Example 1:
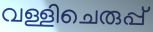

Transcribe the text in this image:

വള്ളിചെരുപ്പ്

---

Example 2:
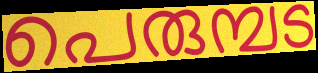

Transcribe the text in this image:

പെരുമ്പട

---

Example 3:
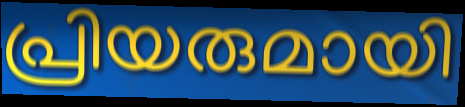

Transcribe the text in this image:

പ്രിയരുമായി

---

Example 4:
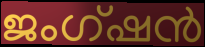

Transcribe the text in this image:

ജംഗ്ഷൻ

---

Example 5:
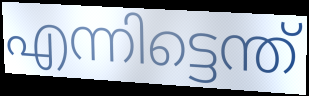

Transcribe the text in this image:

എന്നിട്ടെന്ത്